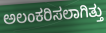
ಅಲಂಕರಿಸಲಾಗಿತ್ತು